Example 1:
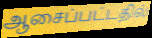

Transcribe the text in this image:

ஆசைப்பட்டதில்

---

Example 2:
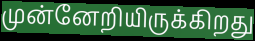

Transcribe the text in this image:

முன்னேறியிருக்கிறது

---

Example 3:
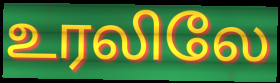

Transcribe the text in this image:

உரலிலே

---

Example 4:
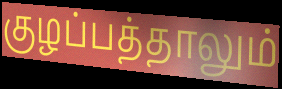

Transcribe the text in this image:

குழப்பத்தாலும்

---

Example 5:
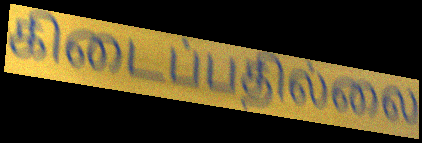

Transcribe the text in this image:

கிடைப்பதில்லை